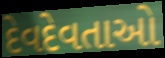
દેવદેવતાઓ